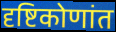
दृष्टिकोणांत